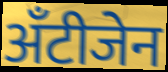
अँटीजेन